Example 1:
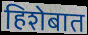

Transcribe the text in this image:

हिशेबात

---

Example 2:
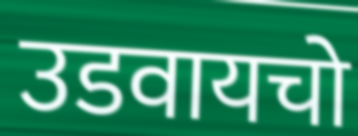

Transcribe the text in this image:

उडवायचो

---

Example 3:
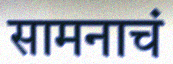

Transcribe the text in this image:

सामनाचं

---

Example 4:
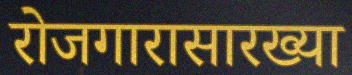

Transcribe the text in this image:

रोजगारासारख्या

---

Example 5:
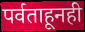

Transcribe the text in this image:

पर्वताहूनही